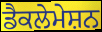
ਡੈਕਲੇਮੇਸ਼ਨ